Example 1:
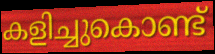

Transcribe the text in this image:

കളിച്ചുകൊണ്ട്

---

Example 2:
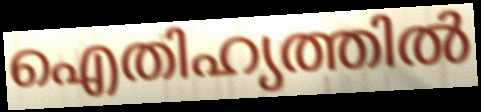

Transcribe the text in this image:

ഐതിഹ്യത്തിൽ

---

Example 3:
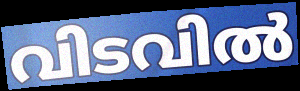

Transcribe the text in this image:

വിടവിൽ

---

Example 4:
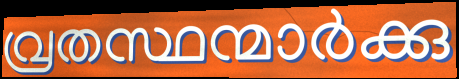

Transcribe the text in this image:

വ്രതസ്ഥന്മാർക്കു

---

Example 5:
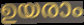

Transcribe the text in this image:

ഉയരാം